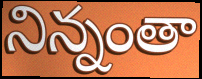
నిన్నంతా